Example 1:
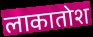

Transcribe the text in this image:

लाकातोश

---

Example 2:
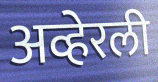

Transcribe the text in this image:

अव्हेरली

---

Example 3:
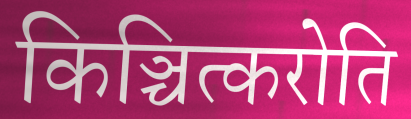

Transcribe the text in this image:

किञ्चित्करोति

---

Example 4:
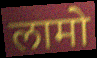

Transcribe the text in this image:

लामो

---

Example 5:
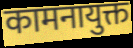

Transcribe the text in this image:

कामनायुक्त